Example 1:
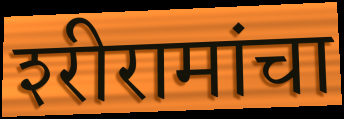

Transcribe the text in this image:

श्रीरामांचा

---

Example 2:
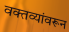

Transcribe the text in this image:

वक्तव्यांवरून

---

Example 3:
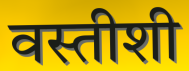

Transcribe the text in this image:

वस्‍तीशी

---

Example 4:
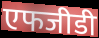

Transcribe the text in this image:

एफजीडी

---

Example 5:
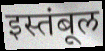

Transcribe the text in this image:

इस्तंबूल